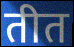
तीत